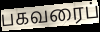
பகவரைப்